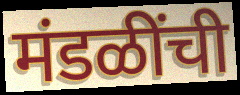
मंडळींची